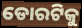
ଡୋରଟିକୁ